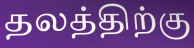
தலத்திற்கு